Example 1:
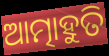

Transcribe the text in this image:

ଆତ୍ମାହୁତି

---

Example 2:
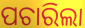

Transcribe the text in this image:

ପଚାରିଲା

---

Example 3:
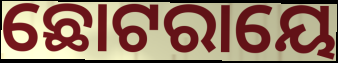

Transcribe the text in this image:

ଛୋଟରାୟେ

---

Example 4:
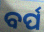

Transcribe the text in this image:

ବର୍ପ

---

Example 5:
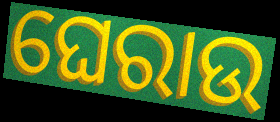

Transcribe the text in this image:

ଘେରାଉ